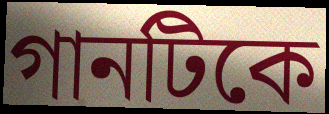
গানটিকে